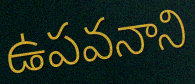
ఉపవనాని